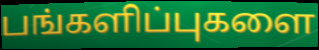
பங்களிப்புகளை